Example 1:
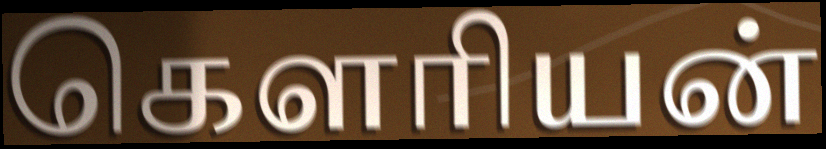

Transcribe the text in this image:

கௌரியன்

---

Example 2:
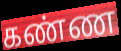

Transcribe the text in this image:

கண்ண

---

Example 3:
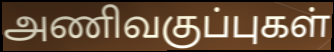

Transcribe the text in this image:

அணிவகுப்புகள்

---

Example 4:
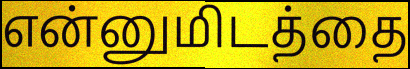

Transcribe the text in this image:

என்னுமிடத்தை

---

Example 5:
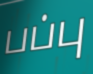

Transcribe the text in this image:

பப்பு